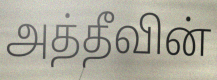
அத்தீவின்